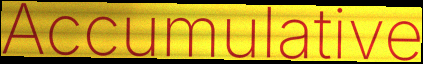
Accumulative